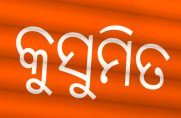
କୁସୁମିତ